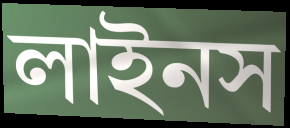
লাইনস